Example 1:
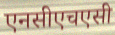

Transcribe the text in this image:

एनसीएचएसी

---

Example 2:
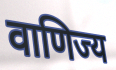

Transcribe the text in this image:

वाणिज्य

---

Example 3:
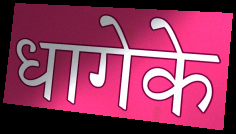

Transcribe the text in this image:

धागेके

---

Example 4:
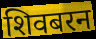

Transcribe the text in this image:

शिवबरन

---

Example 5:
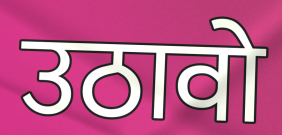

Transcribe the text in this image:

उठावो